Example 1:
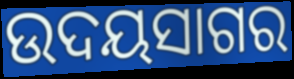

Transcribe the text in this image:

ଉଦୟସାଗର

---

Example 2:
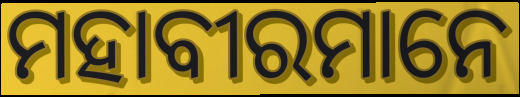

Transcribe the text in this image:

ମହାବୀରମାନେ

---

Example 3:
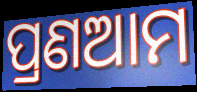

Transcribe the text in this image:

ପ୍ରଣଆମ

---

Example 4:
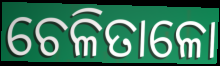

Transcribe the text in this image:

ଚେଳିତାଳୋ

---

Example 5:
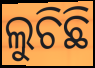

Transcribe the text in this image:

ଲୁଚିଛି